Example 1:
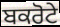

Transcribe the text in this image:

ਬਕਰੋਟੇ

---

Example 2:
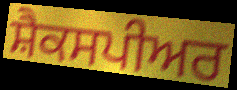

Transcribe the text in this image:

ਸ਼ੈਕਸਪੀਅਰ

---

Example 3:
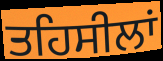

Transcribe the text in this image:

ਤਹਿਸੀਲਾਂ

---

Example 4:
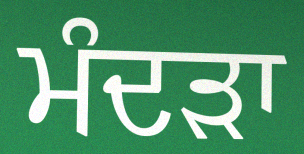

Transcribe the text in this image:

ਮੰਦੜਾ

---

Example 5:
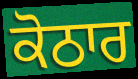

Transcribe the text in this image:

ਕੋਠਾਰ